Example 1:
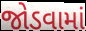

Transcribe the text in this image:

જોડવામાં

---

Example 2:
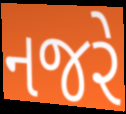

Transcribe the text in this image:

નજરે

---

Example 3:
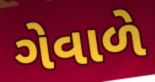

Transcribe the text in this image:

ગેવાળે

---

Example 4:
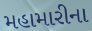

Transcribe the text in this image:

મહામારીના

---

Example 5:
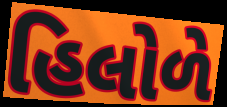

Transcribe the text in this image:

હિલોળે